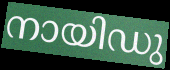
നായിഡു